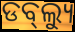
ଡବ୍‌ଲ୍ୟୁ